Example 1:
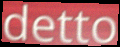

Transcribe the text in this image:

detto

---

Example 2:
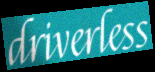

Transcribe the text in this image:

driverless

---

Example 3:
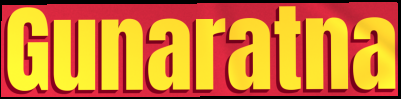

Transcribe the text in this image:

Gunaratna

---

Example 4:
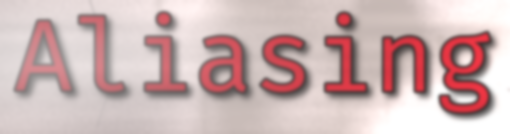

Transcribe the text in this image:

Aliasing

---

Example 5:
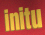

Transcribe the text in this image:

initu